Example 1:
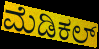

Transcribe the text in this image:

ಮೆಡಿಕಲ್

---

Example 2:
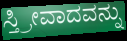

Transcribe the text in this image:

ಸ್ತ್ರೀವಾದವನ್ನು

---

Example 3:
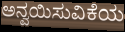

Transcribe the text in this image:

ಅನ್ವಯಿಸುವಿಕೆಯ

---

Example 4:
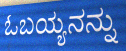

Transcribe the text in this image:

ಓಬಯ್ಯನನ್ನು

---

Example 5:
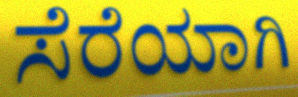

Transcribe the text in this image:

ಸೆರೆಯಾಗಿ